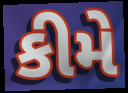
કીમે